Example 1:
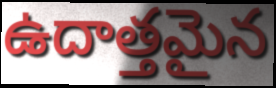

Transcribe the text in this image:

ఉదాత్తమైన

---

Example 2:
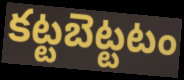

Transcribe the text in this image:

కట్టబెట్టటం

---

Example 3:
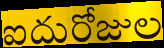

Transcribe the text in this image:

ఐదురోజుల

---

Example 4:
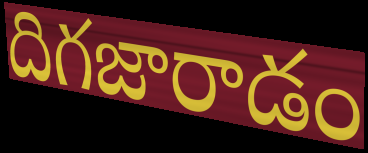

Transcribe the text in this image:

దిగజారాడం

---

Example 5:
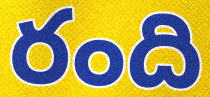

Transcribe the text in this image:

రంది